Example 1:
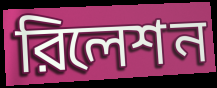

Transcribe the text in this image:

রিলেশন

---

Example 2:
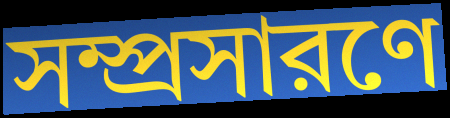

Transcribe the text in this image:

সম্প্রসারণে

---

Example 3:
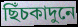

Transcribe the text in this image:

ছিঁচকাদুনে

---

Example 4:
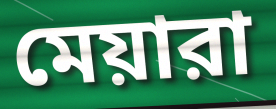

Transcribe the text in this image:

মেয়ারা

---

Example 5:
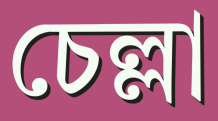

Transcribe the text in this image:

চেল্লা